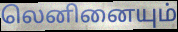
லெனினையும்